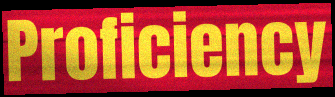
Proficiency